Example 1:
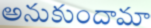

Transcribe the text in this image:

అనుకుందామా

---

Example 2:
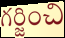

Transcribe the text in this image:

గర్జించి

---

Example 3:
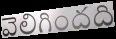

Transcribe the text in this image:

వెలిగిందది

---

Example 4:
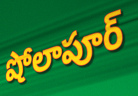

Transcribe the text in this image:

షోలాపూర్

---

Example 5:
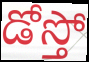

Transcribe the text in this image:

డోస్తో